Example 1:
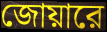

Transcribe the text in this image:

জোয়ারে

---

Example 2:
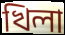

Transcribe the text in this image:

খিলা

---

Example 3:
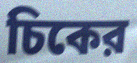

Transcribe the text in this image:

চিকের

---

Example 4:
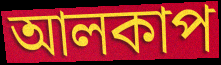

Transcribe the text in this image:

আলকাপ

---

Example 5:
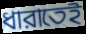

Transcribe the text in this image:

ধারাতেই